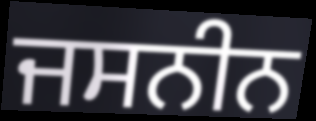
ਜਸਨੀਨ